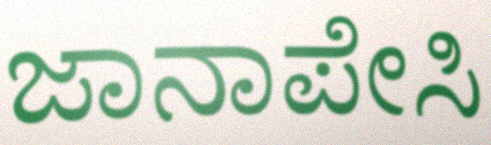
ಜಾನಾಪೇಸಿ